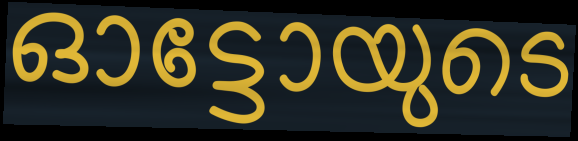
ഓട്ടോയുടെ